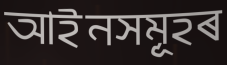
আইনসমূহৰ